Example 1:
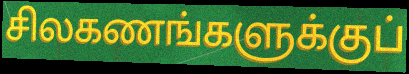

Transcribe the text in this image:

சிலகணங்களுக்குப்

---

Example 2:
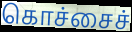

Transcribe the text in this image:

கொச்சைச்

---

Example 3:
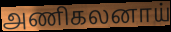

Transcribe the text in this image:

அணிகலனாய்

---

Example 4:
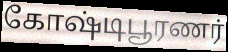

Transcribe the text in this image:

கோஷ்டிபூரணர்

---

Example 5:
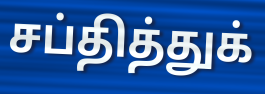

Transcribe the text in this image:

சப்தித்துக்